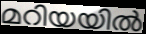
മറിയയിൽ